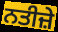
ਨਤੀਜ਼ੇ